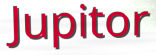
Jupitor